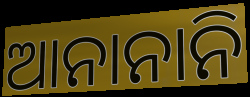
ଆନାନାନି